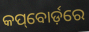
କପ୍‌ବୋର୍ଡ଼ରେ